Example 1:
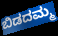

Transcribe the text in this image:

ಬಿಡದಮ್ಮ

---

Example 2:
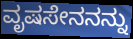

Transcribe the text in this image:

ವೃಷಸೇನನನ್ನು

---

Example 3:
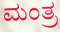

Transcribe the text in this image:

ಮಂತ್ರ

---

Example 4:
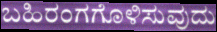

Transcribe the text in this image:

ಬಹಿರಂಗಗೊಳಿಸುವುದು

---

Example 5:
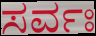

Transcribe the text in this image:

ಸರ್ವಃ